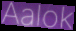
Aalok